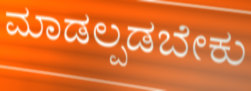
ಮಾಡಲ್ಪಡಬೇಕು